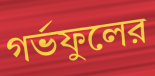
গর্ভফুলের